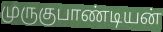
முருகுபாண்டியன்